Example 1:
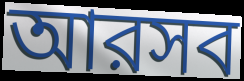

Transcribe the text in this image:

আরসব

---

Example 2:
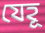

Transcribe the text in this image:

যেহূ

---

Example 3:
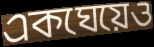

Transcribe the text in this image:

একঘেয়েও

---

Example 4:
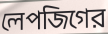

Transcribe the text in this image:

লেপজিগের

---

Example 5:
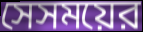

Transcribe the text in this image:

সেসময়ের